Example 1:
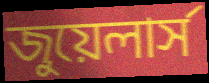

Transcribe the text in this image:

জুয়েলার্স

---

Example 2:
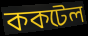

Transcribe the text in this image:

ককটেল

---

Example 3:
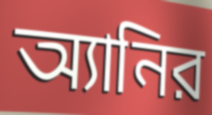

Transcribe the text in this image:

অ্যানির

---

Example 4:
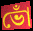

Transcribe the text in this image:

ভোঁ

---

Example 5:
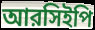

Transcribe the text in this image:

আরসিইপি